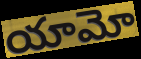
యామో